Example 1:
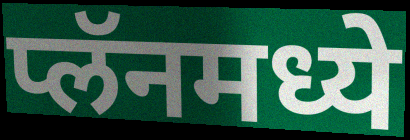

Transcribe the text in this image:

प्लॅनमध्ये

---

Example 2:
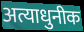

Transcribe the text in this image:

अत्याधुनीक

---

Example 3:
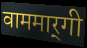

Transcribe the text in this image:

वाममार्गी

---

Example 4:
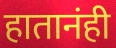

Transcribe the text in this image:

हातानंही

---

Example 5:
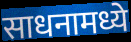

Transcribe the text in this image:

साधनामध्ये